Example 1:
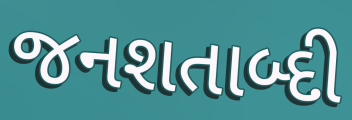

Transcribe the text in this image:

જનશતાબ્દી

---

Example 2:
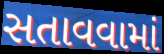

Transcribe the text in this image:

સતાવવામાં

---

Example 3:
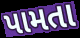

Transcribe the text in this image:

પામતા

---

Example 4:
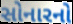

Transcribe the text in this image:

સોનારનો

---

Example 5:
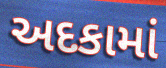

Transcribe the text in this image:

અદકામાં